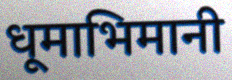
धूमाभिमानी